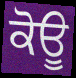
ਕੋਊ